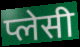
प्लेसी